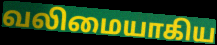
வலிமையாகிய